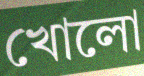
খোলো